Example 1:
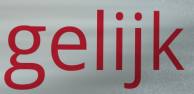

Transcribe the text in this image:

gelijk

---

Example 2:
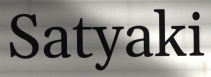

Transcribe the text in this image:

Satyaki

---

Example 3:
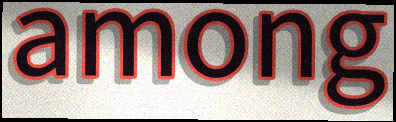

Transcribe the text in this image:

among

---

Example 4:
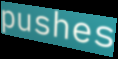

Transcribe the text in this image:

pushes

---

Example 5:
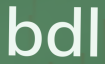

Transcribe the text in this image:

bdl